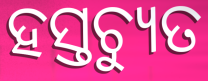
ହସ୍ତଚ୍ୟୁତ